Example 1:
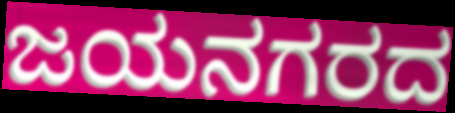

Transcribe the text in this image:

ಜಯನಗರದ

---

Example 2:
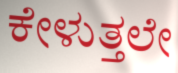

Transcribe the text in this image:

ಕೇಳುತ್ತಲೇ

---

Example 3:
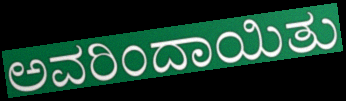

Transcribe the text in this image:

ಅವರಿಂದಾಯಿತು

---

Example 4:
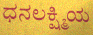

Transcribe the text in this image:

ಧನಲಕ್ಷ್ಮಿಯ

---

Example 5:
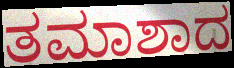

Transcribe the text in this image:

ತಮಾಶಾದ